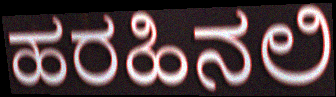
ಹರಹಿನಲಿ